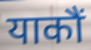
याकौं